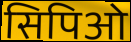
सिपिओ